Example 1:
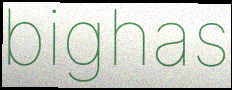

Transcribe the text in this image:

bighas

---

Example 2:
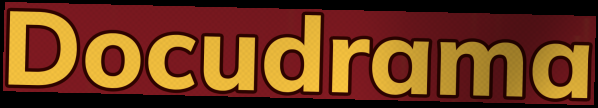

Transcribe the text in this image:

Docudrama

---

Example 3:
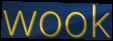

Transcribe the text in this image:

wook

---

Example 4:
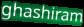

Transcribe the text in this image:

ghashiram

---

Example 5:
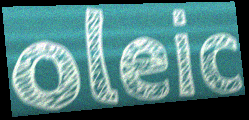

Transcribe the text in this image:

oleic